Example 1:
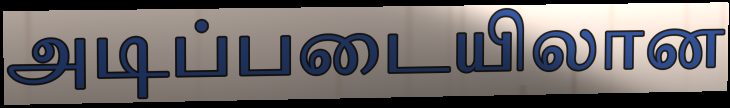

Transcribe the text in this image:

அடிப்படையிலான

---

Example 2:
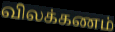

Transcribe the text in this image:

விலக்கணம்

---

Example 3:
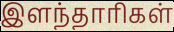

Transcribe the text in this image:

இளந்தாரிகள்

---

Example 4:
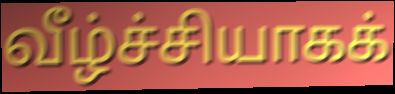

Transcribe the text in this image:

வீழ்ச்சியாகக்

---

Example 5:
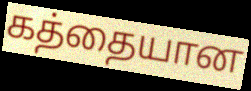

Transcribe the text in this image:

கத்தையான